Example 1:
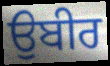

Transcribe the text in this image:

ਉਬੀਰ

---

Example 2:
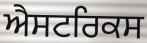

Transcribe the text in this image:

ਐਸਟਰਿਕਸ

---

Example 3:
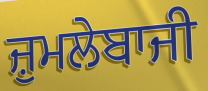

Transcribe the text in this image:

ਜ਼ੁਮਲੇਬਾਜੀ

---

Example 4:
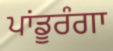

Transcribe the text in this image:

ਪਾਂਡੂਰੰਗਾ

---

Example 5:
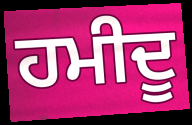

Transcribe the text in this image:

ਹਮੀਦੂ